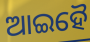
ଆଇହୈ